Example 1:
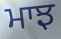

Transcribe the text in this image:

ਮਾਝ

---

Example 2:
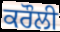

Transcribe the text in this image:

ਕਰੌਲੀ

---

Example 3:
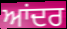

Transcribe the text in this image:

ਆਂਦਰ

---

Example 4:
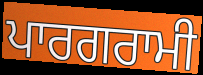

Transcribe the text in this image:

ਪਾਰਗਰਾਮੀ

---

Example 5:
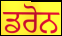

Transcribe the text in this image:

ਡਰੋਨ